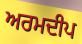
ਅਰਮਦੀਪ